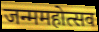
जन्ममहोत्सव